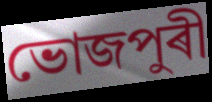
ভোজপুৰী